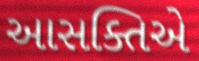
આસક્તિએ